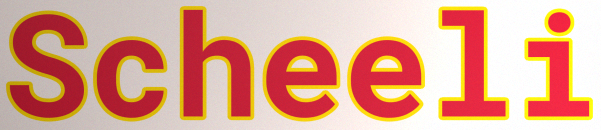
Scheeli